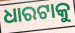
ଧାରଟାକୁ